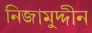
নিজামুদ্দীন